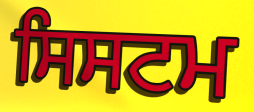
ਸਿਸਟਮ